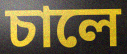
চালে